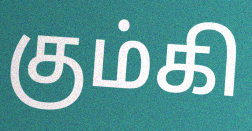
கும்கி